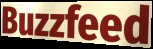
Buzzfeed